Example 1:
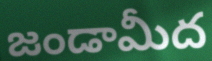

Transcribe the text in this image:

జండామీద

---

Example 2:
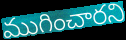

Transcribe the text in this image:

ముగించారని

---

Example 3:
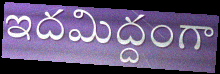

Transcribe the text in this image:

ఇదమిద్దంగా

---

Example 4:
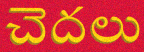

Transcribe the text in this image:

చెదలు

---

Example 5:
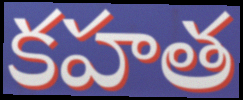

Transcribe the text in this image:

కహత